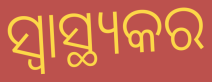
ସ୍ୱାସ୍ଥ୍ୟକର